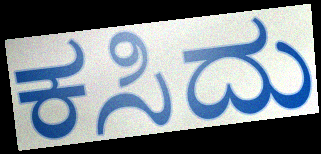
ಕಸಿದು